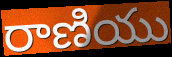
రాణియు